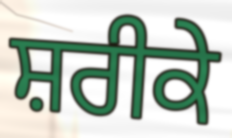
ਸ਼ਰੀਕੇ